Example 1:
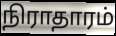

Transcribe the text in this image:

நிராதாரம்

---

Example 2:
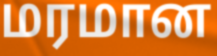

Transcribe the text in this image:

மரமான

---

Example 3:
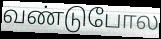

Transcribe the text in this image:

வண்டுபோல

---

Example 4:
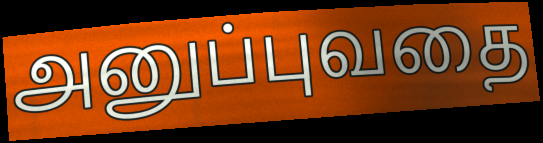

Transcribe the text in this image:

அனுப்புவதை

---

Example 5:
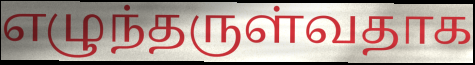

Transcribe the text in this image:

எழுந்தருள்வதாக